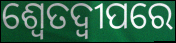
ଶ୍ୱେତଦ୍ୱୀପରେ